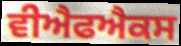
ਵੀਐਫਐਕਸ